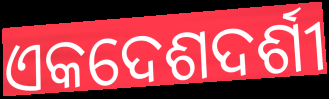
ଏକଦେଶଦର୍ଶୀ